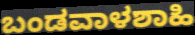
ಬಂಡವಾಳಶಾಹಿ